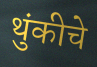
थुंकीचे